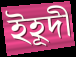
ইহূদী